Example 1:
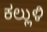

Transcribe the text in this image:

ಕಲ್ಲುಳಿ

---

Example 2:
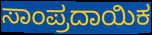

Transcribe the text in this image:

ಸಾಂಪ್ರದಾಯಿಕ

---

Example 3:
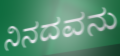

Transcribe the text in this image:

ನಿನದವನು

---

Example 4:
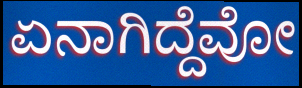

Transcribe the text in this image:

ಏನಾಗಿದ್ದೆವೋ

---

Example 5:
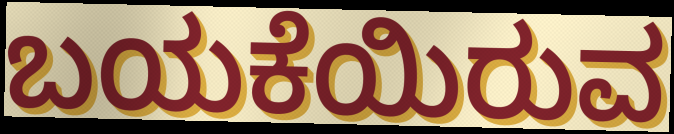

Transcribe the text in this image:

ಬಯಕೆಯಿರುವ